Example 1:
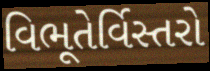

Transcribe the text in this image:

વિભૂતેર્વિસ્તરો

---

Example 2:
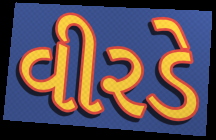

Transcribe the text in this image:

વીરડે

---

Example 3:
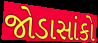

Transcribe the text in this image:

જોડાસાંકો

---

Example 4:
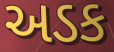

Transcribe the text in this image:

અડક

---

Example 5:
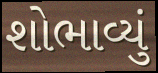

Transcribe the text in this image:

શોભાવ્યું